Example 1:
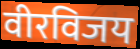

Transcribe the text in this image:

वीरविजय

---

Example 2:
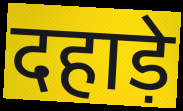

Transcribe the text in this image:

दहाड़े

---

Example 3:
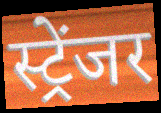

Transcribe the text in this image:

स्ट्रेंजर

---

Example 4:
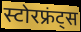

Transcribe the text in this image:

स्टोरफ्रंट्स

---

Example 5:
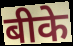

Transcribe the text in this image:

बीके